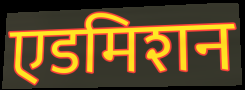
एडमिशन